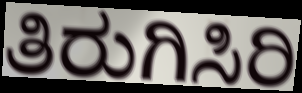
ತಿರುಗಿಸಿರಿ